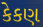
કેકણ